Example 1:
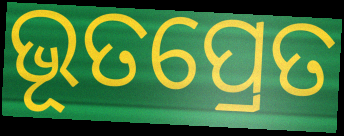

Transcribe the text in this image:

ଭୂତପ୍ରେତ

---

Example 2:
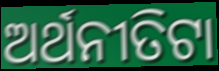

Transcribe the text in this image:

ଅର୍ଥନୀତିଟା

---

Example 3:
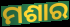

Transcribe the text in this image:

ମଶାର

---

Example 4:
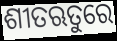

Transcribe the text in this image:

ଶୀତଋତୁରେ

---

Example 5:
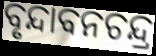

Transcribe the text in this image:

ବୃନ୍ଦାବନଚନ୍ଦ୍ର